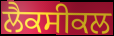
ਲੈਕਸੀਕਲ